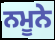
ਨਮੂਨੇ